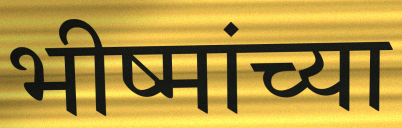
भीष्मांच्या